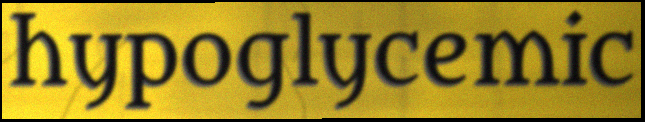
hypoglycemic